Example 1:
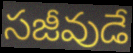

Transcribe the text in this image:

సజీవుడే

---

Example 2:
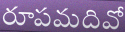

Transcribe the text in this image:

రూపమదివో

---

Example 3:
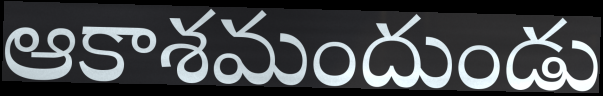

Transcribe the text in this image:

ఆకాశమందుండు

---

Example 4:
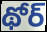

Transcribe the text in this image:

థోర్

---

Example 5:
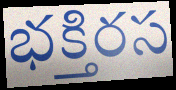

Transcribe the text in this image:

భక్తిరస